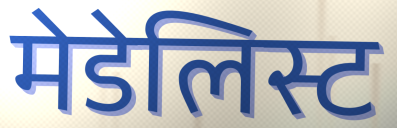
मेडेलिस्ट